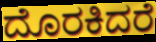
ದೊರಕಿದರೆ